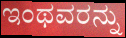
ಇಂಥವರನ್ನು